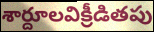
శార్దూలవిక్రీడితపు